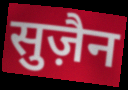
सुज़ैन